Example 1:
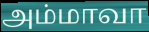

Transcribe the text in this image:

அம்மாவா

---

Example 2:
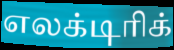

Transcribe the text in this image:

எலக்டிரிக்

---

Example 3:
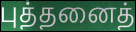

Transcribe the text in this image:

புத்தனைத்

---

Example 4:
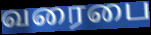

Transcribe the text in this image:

வரைபை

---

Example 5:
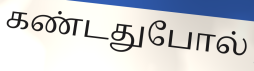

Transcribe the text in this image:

கண்டதுபோல்